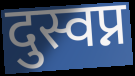
दुस्वप्न